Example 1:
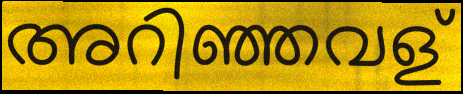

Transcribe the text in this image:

അറിഞ്ഞവള്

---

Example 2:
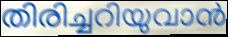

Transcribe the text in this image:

തിരിച്ചറിയുവാൻ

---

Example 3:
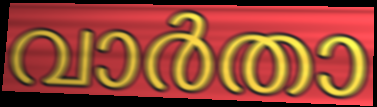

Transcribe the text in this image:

വാർതാ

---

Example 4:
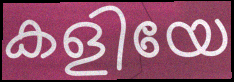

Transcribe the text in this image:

കളിയേ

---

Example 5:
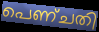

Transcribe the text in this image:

പെണ്ചതി